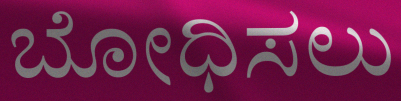
ಬೋಧಿಸಲು